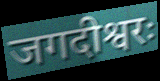
जगदीश्वरः